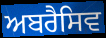
ਅਬਰੈਸਿਵ